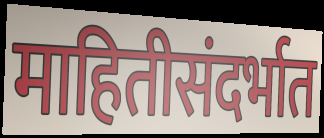
माहितीसंदर्भात